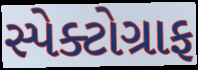
સ્પેક્ટોગ્રાફ